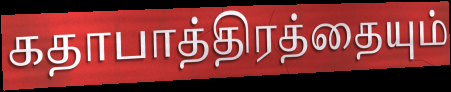
கதாபாத்திரத்தையும்